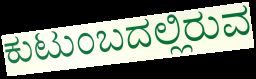
ಕುಟುಂಬದಲ್ಲಿರುವ